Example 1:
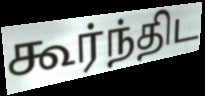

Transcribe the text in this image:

கூர்ந்திட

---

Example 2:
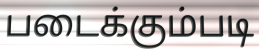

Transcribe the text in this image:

படைக்கும்படி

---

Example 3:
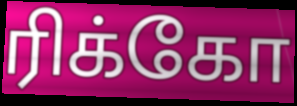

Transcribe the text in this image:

ரிக்கோ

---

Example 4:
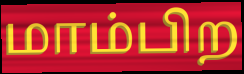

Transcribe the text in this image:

மாம்பிற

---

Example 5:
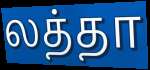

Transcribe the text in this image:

லத்தா